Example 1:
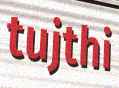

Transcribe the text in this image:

tujthi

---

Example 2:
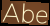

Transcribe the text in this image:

Abe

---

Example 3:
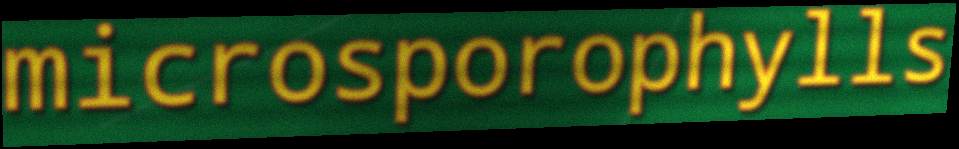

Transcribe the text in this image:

microsporophylls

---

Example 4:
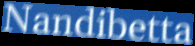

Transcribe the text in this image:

Nandibetta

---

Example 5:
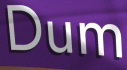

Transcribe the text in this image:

Dum